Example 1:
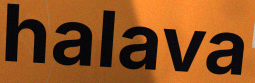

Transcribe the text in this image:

halava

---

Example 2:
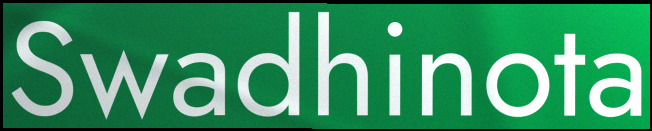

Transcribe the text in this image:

Swadhinota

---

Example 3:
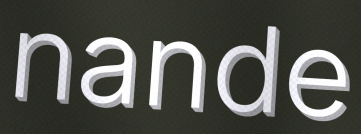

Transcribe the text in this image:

nande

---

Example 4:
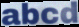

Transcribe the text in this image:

abcd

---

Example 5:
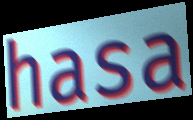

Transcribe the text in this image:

hasa